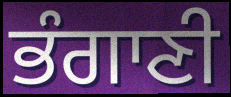
ਭੰਗਾਣੀ